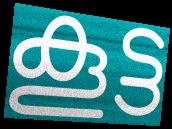
കൂട്ട